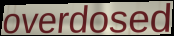
overdosed